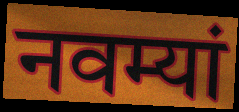
नवम्यां